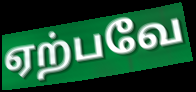
ஏற்பவே